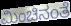
ಮಿಂಚಿನಂತೆ